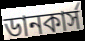
ডানকার্স